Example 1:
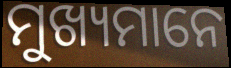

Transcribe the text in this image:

ମୁଖ୍ୟମାନେ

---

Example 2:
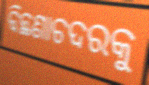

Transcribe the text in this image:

ବିଛଣାଚଦରକୁ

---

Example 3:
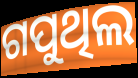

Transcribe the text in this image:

ଗପୁଥିଲ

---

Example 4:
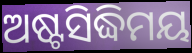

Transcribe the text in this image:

ଅଷ୍ଟସିଦ୍ଧିମୟ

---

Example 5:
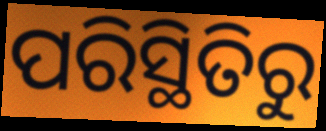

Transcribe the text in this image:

ପରିସ୍ଥିତିରୁ